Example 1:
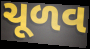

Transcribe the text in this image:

ચૂળવ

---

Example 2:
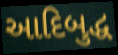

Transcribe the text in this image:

આદિબુદ્ધ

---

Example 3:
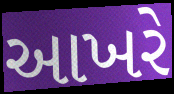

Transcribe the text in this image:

આખરે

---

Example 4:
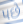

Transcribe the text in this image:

પછે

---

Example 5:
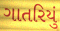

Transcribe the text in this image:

ગાતરિયું